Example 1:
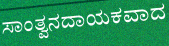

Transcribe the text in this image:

ಸಾಂತ್ವನದಾಯಕವಾದ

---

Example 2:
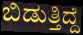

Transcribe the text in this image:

ಬಿಡುತ್ತಿದ್ದೆ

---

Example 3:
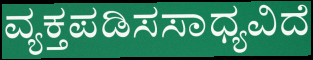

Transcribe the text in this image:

ವ್ಯಕ್ತಪಡಿಸಸಾಧ್ಯವಿದೆ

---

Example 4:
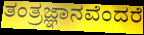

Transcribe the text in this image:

ತಂತ್ರಜ್ಞಾನವೆಂದರೆ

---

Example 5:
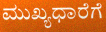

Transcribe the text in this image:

ಮುಖ್ಯಧಾರೆಗೆ